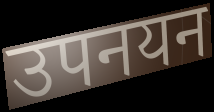
उपनयन